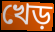
খেড়